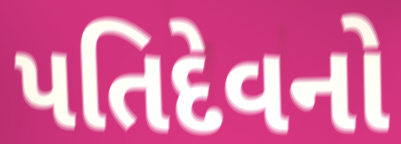
પતિદેવનો